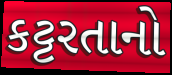
કટ્ટરતાનો